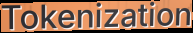
Tokenization